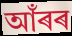
আঁৰৰ